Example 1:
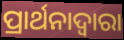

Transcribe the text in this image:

ପ୍ରାର୍ଥନାଦ୍ଵାରା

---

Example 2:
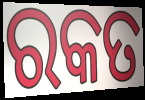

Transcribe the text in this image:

ରକତ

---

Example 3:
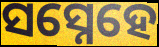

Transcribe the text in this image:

ସସ୍ନେହେ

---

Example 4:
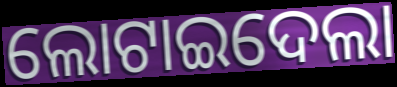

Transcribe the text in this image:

ଲୋଟାଇଦେଲା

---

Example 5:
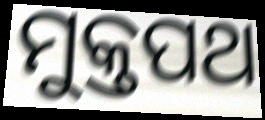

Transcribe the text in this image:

ମୁକ୍ତପଥ